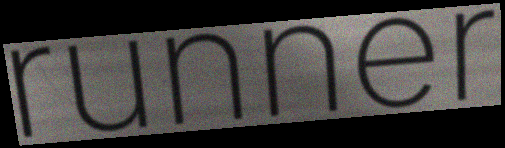
runner